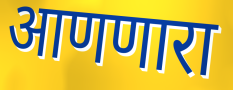
आणणारा